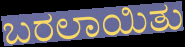
ಬರಲಾಯಿತು